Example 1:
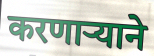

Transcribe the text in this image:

करणाऱ्याने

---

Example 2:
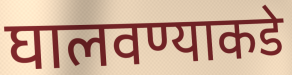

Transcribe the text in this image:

घालवण्याकडे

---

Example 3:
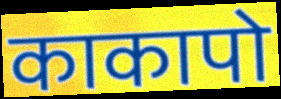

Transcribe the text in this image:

काकापो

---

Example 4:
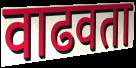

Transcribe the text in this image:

वाढवता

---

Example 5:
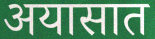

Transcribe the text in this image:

अयासात